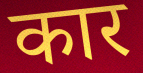
कार